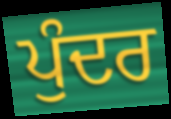
ਪੁੰਦਰ